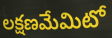
లక్షణమేమిటో